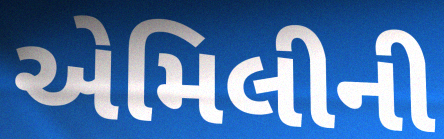
એમિલીની